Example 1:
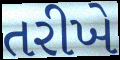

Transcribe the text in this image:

તરીખે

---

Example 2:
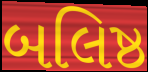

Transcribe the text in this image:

બલિષ્ઠ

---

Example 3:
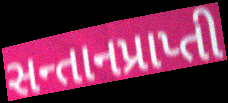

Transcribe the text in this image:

સન્તાનપ્રાપ્તી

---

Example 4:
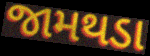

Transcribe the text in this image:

જામથડા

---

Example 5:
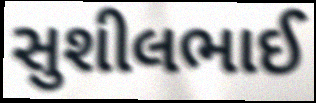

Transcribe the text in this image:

સુશીલભાઈ